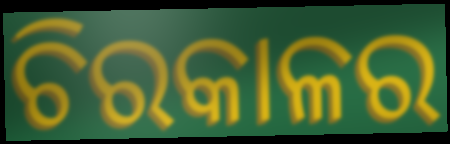
ଚିରକାଳର